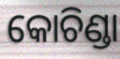
କୋଚିଣ୍ଡା